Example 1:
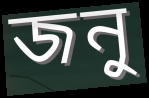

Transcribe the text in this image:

জনু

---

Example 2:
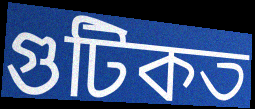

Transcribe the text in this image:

গুটিকত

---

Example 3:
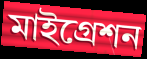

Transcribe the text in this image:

মাইগ্রেশন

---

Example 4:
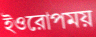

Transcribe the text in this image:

ইওরোপময়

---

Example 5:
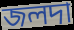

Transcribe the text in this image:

জলদা